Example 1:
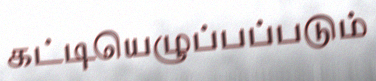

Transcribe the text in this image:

கட்டியெழுப்பப்படும்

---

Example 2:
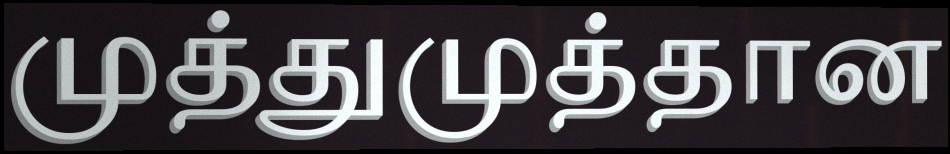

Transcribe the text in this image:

முத்துமுத்தான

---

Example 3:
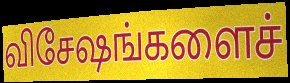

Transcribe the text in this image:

விசேஷங்களைச்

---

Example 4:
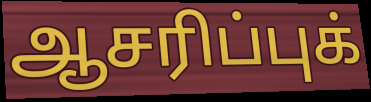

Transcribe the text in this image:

ஆசரிப்புக்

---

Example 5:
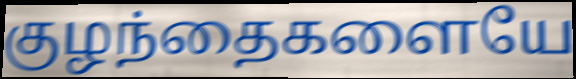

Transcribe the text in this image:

குழந்தைகளையே